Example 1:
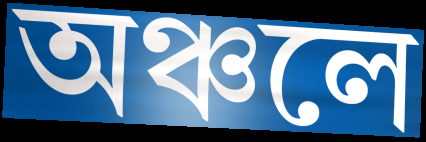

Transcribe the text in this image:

অঞ্চলে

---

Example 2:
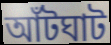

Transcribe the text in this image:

আঁটঘাট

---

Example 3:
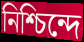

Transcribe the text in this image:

নিশ্চিন্দে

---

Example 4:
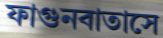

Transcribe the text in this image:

ফাগুনবাতাসে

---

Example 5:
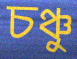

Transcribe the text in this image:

চঞ্চু